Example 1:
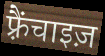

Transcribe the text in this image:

फ़्रैंचाइज़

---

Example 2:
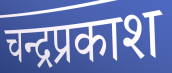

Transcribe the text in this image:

चन्द्रप्रकाश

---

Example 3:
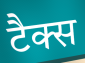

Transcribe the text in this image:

टैक्‍स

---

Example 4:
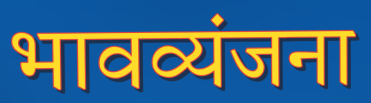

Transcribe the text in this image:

भावव्यंजना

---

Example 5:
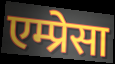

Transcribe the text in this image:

एम्प्रेसा